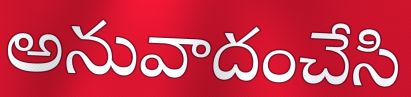
అనువాదంచేసి